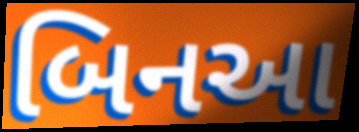
બિનઆ